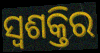
ସ୍ଵଶକ୍ତିର